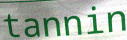
tannin